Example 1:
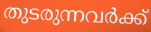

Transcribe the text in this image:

തുടരുന്നവർക്ക്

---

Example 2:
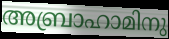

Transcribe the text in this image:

അബ്രാഹാമിനു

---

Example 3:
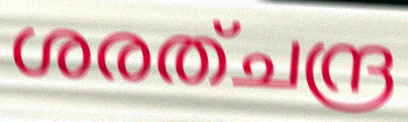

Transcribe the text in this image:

ശരത്ചന്ദ്ര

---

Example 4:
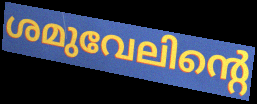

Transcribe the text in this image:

ശമുവേലിന്റെ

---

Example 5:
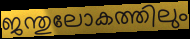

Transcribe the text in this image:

ജന്തുലോകത്തിലും